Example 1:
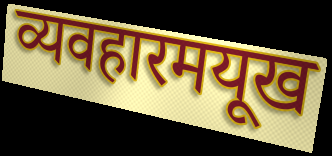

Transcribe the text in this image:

व्यवहारमयूख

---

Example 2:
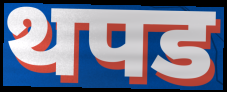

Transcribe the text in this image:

थपड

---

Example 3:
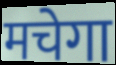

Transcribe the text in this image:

मचेगा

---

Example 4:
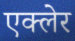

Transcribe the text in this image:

एक्लेर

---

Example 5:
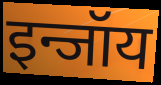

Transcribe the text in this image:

इन्जॉय